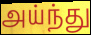
அய்ந்து